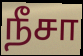
நீசா